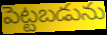
పెట్టబడును